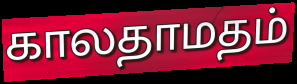
காலதாமதம்